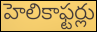
హెలికాఫ్టర్లు